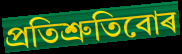
প্ৰতিশ্ৰুতিবোৰ